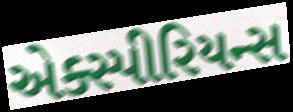
એક્સ્પીરિયન્સ